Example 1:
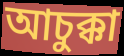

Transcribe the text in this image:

আচুক্কা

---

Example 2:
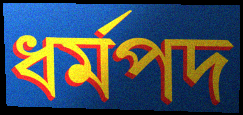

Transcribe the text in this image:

ধর্মপদ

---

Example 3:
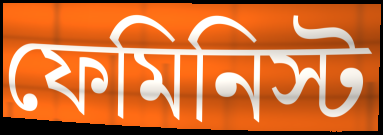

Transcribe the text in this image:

ফেমিনিস্ট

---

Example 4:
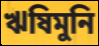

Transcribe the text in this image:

ঋষিমুনি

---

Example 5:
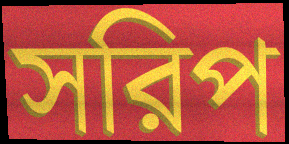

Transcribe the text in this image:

সরিপ